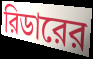
রিডারের